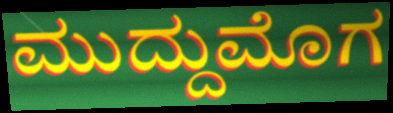
ಮುದ್ದುಮೊಗ